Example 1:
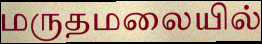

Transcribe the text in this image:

மருதமலையில்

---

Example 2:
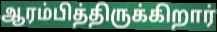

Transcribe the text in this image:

ஆரம்பித்திருக்கிறார்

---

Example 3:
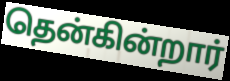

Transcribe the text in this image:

தென்கின்றார்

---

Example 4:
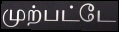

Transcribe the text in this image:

முற்பட்டே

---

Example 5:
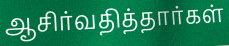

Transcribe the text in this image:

ஆசிர்வதித்தார்கள்